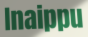
Inaippu